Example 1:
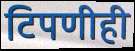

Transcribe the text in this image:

टिपणीही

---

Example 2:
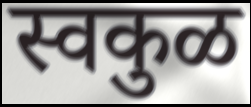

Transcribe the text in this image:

स्वकुळ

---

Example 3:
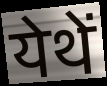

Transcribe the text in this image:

येथें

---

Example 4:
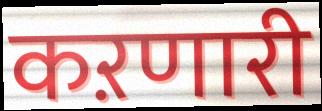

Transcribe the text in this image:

कऱणारी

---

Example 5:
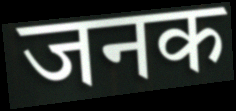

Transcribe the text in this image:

जनक